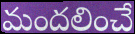
మందలించే